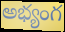
అభ్యంగ